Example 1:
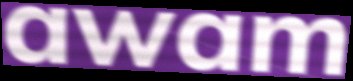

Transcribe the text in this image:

awam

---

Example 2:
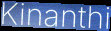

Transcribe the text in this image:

Kinanthi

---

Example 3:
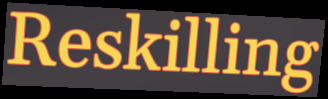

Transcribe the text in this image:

Reskilling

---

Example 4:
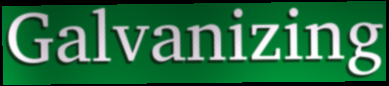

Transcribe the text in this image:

Galvanizing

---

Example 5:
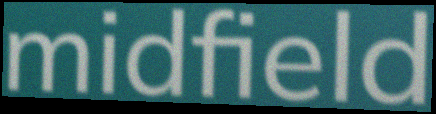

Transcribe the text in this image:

midfield